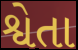
શ્વેતા